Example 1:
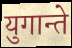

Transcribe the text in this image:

युगान्ते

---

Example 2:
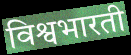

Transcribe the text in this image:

विश्वभारती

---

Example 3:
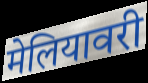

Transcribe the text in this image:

मेलियावरी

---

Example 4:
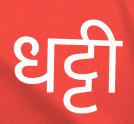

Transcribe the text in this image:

धट्टी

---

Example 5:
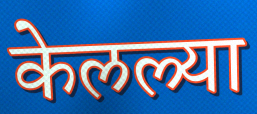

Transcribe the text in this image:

केलल्या